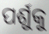
ପର୍ଶୁକୁ